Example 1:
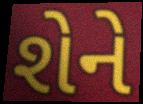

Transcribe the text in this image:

શેને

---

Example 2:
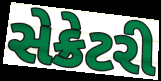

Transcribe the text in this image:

સેક્રેટરી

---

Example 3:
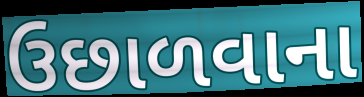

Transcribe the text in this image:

ઉછાળવાના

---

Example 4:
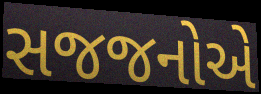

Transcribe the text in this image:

સજજનોએ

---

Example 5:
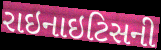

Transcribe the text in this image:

રાઇનાઇટિસની